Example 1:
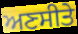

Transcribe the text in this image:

ਅਣਸੀਤੇ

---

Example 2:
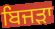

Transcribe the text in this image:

ਬਿਜੜਾ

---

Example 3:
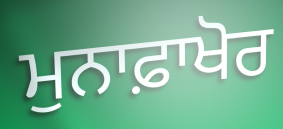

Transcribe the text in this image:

ਮੁਨਾਫ਼ਾਖੋਰ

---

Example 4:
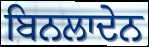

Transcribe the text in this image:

ਬਿਨਲਾਦੇਨ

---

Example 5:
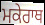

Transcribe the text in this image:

ਮਕੇਰਾਥ